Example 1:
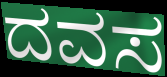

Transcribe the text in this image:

ದವಸ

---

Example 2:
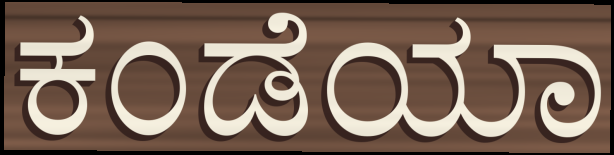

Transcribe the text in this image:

ಕಂಡೆಯಾ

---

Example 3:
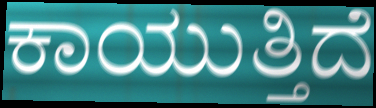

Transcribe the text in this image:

ಕಾಯುತ್ತಿದೆ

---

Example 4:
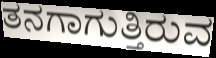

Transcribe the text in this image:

ತನಗಾಗುತ್ತಿರುವ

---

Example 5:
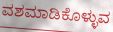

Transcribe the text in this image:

ವಶಮಾಡಿಕೊಳ್ಳುವ